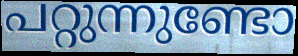
പറ്റുന്നുണ്ടോ